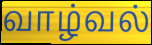
வாழ்வல்